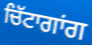
ਚਿੱਟਾਗਾਂਗ